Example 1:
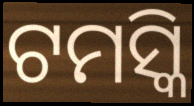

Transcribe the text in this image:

ଟମସ୍କି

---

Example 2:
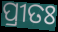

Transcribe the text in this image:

ପ୍ରୀତଃ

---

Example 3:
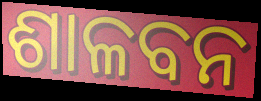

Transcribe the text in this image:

ଶାଳବନ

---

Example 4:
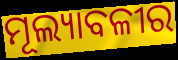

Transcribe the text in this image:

ମୂଲ୍ୟାବଳୀର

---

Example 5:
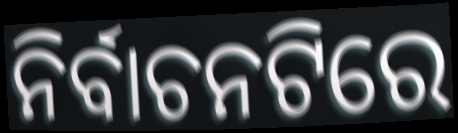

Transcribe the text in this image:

ନିର୍ବାଚନଟିରେ